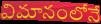
విమానంలోనే